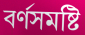
বর্ণসমষ্টি